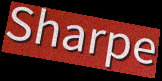
Sharpe